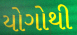
યોગોથી